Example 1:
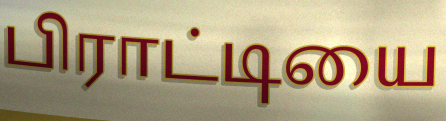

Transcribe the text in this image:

பிராட்டியை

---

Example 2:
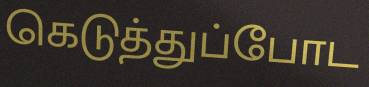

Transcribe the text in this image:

கெடுத்துப்போட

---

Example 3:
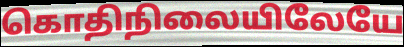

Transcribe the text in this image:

கொதிநிலையிலேயே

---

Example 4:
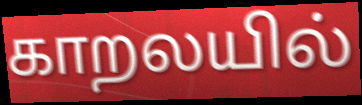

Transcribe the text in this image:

காறலயில்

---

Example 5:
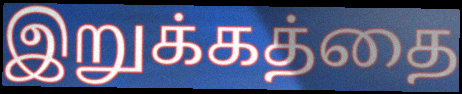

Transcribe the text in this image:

இறுக்கத்தை